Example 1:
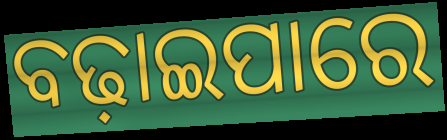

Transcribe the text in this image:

ବଢ଼ାଇପାରେ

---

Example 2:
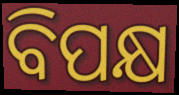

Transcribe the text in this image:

ବିପକ୍ଷ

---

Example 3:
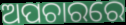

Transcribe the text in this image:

ଅପଚାରରେ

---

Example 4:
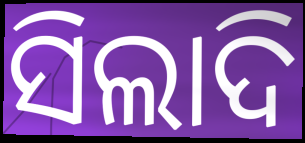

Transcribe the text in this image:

ସିଲାଦି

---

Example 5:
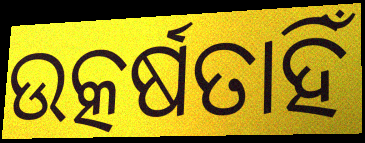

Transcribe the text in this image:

ଉତ୍କର୍ଷତାହିଁ